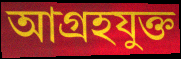
আগ্রহযুক্ত